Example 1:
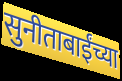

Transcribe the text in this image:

सुनीताबाईंच्या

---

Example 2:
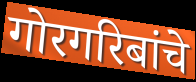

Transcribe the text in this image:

गोरगरिबांचे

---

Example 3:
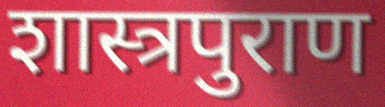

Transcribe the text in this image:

शास्त्रपुराण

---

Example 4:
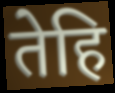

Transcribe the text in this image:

तेहि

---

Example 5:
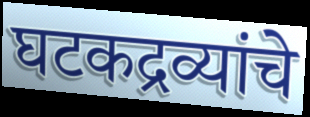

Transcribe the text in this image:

घटकद्रव्यांचे